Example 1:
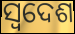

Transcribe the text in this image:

ସ୍ୱଦେଶ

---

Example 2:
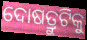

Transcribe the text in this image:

ଦୋଷତ୍ରୁଟିକୁ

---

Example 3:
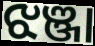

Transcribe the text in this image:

ଝଞ୍ଜା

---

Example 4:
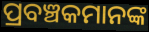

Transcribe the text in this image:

ପ୍ରବଞ୍ଚକମାନଙ୍କ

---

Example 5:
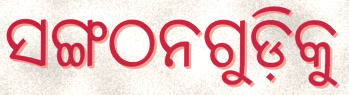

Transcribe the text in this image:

ସଙ୍ଗଠନଗୁଡ଼ିକୁ